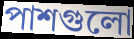
পাশগুলো